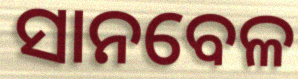
ସାନବେଳ